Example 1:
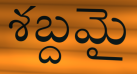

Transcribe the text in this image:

శబ్దమై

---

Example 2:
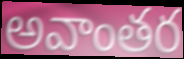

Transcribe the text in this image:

అవాంతర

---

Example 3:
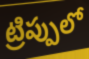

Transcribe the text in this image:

ట్రిప్పులో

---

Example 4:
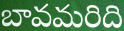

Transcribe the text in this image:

బావమరిది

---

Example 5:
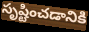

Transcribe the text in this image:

సృష్టించడానికి